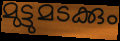
മുട്ടുമടക്കും